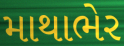
માથાભેર